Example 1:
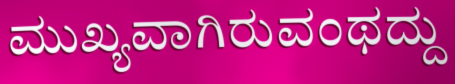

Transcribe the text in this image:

ಮುಖ್ಯವಾಗಿರುವಂಥದ್ದು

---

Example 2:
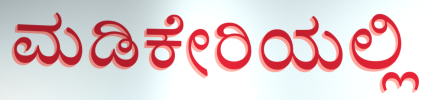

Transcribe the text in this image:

ಮಡಿಕೇರಿಯಲ್ಲಿ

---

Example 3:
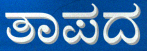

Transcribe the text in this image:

ತಾಪದ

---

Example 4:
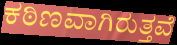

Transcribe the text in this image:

ಕಠಿಣವಾಗಿರುತ್ತವೆ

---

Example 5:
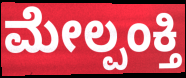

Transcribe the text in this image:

ಮೇಲ್ಪಂಕ್ತಿ